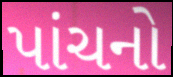
પાંચનો